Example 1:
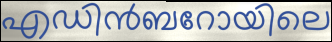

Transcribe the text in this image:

എഡിൻബറോയിലെ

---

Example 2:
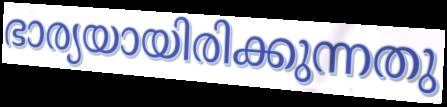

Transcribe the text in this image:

ഭാര്യയായിരിക്കുന്നതു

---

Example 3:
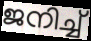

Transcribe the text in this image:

ജനിച്ച്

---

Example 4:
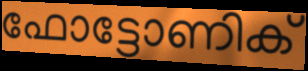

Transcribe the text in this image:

ഫോട്ടോണിക്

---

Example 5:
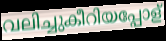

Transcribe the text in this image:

വലിച്ചുകീറിയപ്പോള്